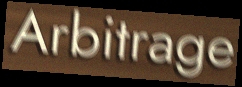
Arbitrage